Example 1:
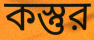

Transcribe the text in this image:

কস্তুর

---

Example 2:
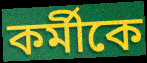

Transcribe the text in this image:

কর্মীকে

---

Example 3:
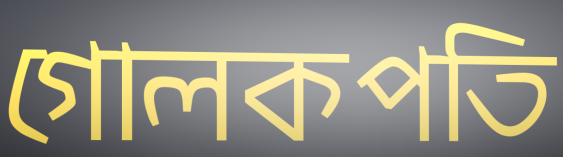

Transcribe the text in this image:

গোলকপতি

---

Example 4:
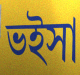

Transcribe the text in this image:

ভইসা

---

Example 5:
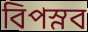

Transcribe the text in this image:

বিপস্নব